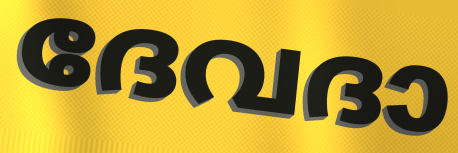
ദേവദാ